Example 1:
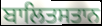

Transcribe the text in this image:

ਬਾਲਿਤਸਤਾਨ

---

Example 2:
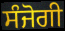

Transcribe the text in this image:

ਸੰਜੋਗੀ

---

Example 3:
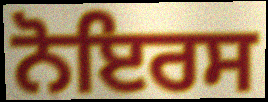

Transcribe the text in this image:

ਨੋਇਰਸ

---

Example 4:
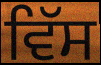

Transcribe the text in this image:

ਵਿੱਸ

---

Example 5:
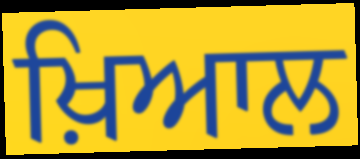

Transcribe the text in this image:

ਖ਼ਿਆਲ